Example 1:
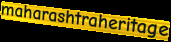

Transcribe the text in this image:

maharashtraheritage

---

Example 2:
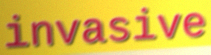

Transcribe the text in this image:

invasive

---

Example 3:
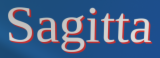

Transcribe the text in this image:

Sagitta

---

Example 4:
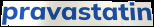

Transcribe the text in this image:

pravastatin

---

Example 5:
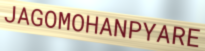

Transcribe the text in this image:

JAGOMOHANPYARE